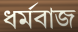
ধর্মবাজ